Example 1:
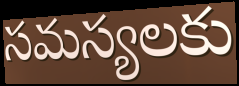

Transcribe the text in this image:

సమస్యలకు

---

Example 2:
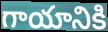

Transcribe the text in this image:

గాయానికి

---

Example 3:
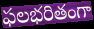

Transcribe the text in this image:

ఫలభరితంగా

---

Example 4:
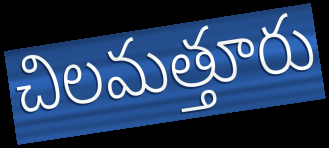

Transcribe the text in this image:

చిలమత్తూరు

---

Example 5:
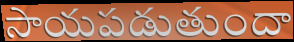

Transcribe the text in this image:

సాయపడుతుందా